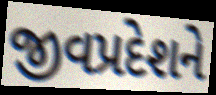
જીવપ્રદેશને